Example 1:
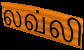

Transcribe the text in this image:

லவ்லி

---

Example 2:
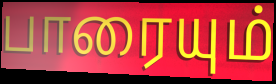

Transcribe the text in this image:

பாரையும்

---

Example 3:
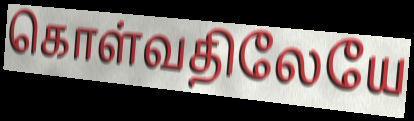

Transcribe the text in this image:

கொள்வதிலேயே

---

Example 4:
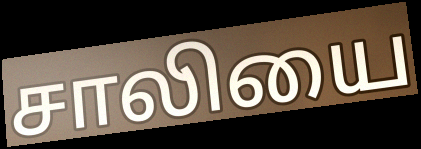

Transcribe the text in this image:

சாலியை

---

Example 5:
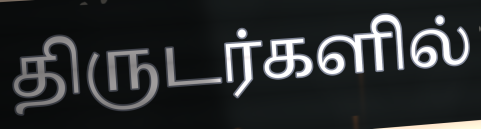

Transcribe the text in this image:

திருடர்களில்